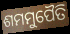
ଶମମୁପୈତି